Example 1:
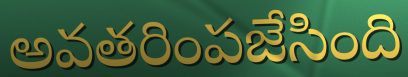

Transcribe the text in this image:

అవతరింపజేసింది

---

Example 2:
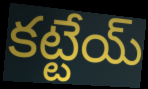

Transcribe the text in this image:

కట్టేయ్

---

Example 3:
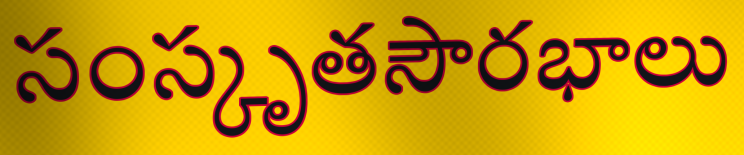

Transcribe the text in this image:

సంస్కృతసౌరభాలు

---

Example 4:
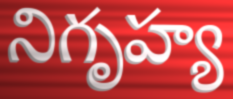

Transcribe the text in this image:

నిగృహ్య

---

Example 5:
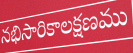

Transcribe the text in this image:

నభిసారికాలక్షణము